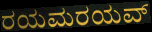
ರಯಮರಯವ್